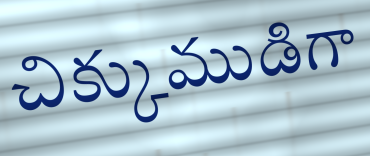
చిక్కుముడిగా